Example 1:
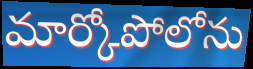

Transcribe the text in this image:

మార్కోపోలోను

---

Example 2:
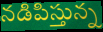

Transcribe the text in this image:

నడిపిస్తున్న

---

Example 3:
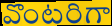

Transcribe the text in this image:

వొంటరిగా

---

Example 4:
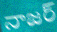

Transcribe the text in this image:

నాజర్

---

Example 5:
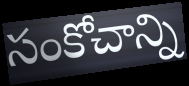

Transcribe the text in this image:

సంకోచాన్ని